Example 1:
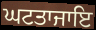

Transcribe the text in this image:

ਘਟਤਾਜਾਇ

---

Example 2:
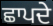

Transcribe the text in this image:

ਛਾਪਦੇ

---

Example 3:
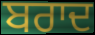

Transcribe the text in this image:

ਬਰਾਦ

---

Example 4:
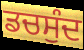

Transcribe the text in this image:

ਡਚਸੁੰਦ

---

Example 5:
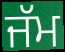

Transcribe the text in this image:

ਜੱਮ